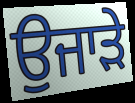
ਉਜਾੜੇ